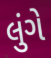
લુંગે